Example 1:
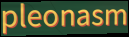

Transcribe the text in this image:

pleonasm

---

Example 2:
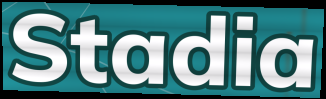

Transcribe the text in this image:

Stadia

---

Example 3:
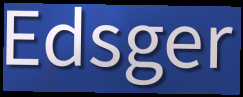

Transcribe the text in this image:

Edsger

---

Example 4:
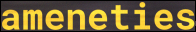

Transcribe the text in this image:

ameneties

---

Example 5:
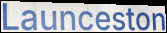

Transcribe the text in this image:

Launceston